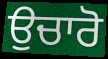
ਉਚਾਰੋ